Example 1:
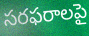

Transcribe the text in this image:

సరఫరాలపై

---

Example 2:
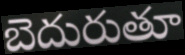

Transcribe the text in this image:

బెదురుతూ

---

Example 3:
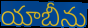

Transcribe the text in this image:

యాబీను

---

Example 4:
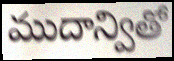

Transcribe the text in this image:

ముదాన్వితో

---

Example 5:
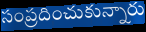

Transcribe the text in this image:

సంప్రదించుకున్నారు